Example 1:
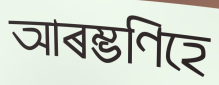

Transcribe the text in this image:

আৰম্ভণিহে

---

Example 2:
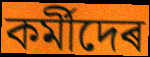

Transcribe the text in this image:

কৰ্মীদেৰ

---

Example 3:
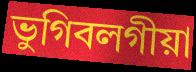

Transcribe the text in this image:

ভুগিবলগীয়া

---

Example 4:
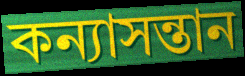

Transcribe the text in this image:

কন্যাসন্তান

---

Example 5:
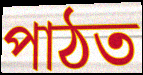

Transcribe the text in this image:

পাঠত